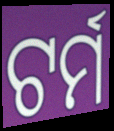
ଟର୍ମ